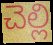
చెల్లి